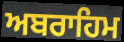
ਅਬਰਾਹਿਮ